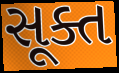
સૂક્ત